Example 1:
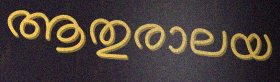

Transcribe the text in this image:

ആതുരാലയ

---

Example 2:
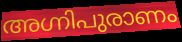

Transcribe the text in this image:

അഗ്നിപുരാണം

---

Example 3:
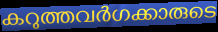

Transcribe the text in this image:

കറുത്തവർഗക്കാരുടെ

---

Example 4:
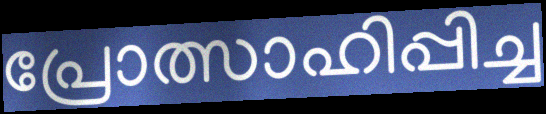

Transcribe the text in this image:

പ്രോത്സാഹിപ്പിച്ച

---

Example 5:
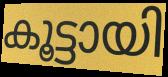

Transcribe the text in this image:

കൂട്ടായി